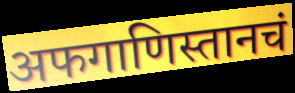
अफगाणिस्तानचं